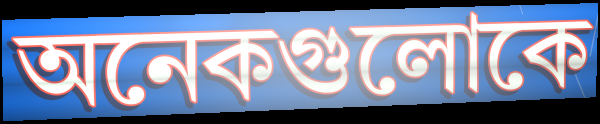
অনেকগুলোকে